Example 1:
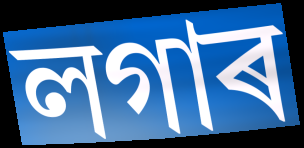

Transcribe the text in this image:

লগাৰ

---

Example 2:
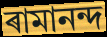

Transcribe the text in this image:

ৰামানন্দ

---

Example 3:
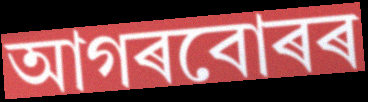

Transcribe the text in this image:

আগৰবোৰৰ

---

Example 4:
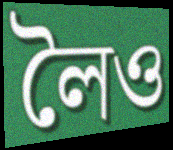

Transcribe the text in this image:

লৈও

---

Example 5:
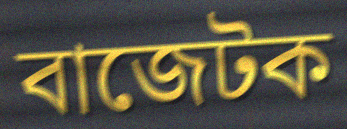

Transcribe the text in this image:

বাজেটক